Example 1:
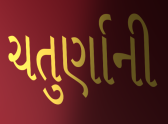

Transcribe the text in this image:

ચતુર્ણાની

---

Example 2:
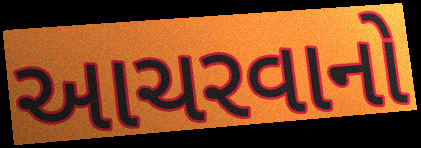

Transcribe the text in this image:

આચરવાનો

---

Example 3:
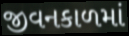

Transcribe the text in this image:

જીવનકાળમાં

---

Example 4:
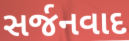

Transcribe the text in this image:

સર્જનવાદ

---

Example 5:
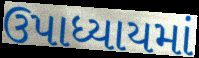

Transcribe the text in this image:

ઉપાધ્યાયમાં